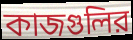
কাজগুলির